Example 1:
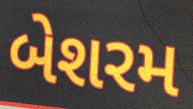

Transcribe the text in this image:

બેશરમ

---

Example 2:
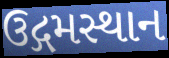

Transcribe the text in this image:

ઉદ્ગમસ્થાન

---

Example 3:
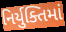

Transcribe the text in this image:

નિર્યુક્તિમાં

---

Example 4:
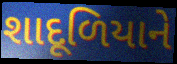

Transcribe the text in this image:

શાદૂળિયાને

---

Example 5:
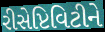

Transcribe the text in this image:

રીસેપ્ટિવિટીને